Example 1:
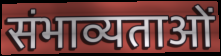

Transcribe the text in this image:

संभाव्यताओं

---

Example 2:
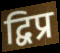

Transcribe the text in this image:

द्विप्र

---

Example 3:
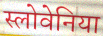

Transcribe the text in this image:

स्लोवेनिया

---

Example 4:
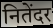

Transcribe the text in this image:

नितेंदर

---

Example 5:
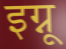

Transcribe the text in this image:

इग्नू